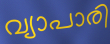
വ്യാപാരി